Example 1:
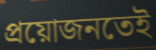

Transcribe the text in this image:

প্ৰয়োজনতেই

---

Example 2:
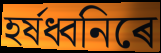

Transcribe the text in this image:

হৰ্ষধ্বনিৰে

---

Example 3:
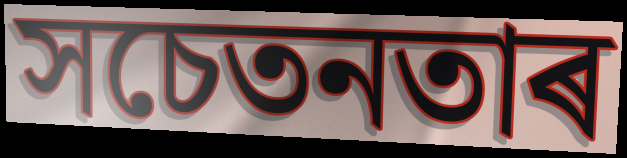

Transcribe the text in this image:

সচেতনতাৰ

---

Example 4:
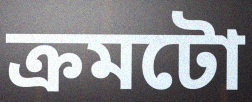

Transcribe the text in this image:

ক্ৰমটো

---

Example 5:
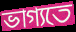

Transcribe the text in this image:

ভাগ্যতে